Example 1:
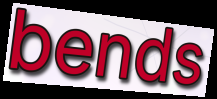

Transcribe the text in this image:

bends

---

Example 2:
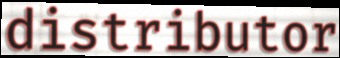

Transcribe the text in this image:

distributor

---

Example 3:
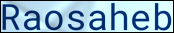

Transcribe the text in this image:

Raosaheb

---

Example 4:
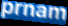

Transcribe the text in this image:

prnam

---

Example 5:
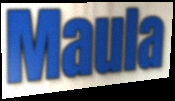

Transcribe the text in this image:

Maula